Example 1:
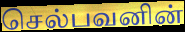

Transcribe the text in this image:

செல்பவனின்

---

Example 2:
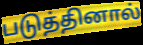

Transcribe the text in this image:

படுத்தினால்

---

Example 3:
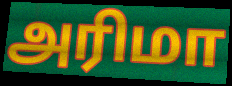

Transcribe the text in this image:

அரிமா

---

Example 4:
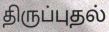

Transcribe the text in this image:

திருப்புதல்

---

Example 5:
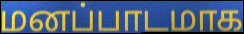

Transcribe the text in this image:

மனப்பாடமாக